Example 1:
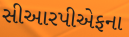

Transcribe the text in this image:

સીઆરપીએફના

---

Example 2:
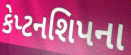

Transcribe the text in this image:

કેપ્ટનશિપના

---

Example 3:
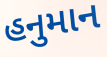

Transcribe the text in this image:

હનુમાન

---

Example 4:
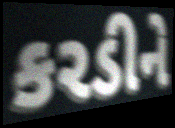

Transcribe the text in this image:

કરડીને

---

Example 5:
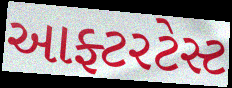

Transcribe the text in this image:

આફ્ટરટેસ્ટ